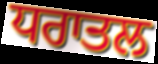
ਧਰਾਤਲ